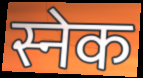
स्‍नेक